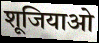
शूजियाओ